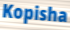
Kopisha